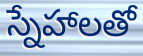
స్నేహాలతో